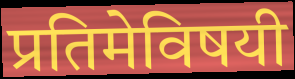
प्रतिमेविषयी